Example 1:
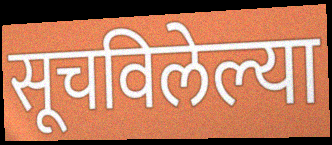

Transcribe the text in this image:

सूचविलेल्या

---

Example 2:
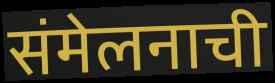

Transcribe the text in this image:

संमेलनाची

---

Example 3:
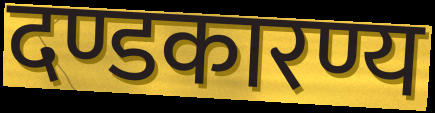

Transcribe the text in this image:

दण्डकारण्य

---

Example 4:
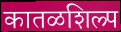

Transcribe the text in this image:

कातळशिल्प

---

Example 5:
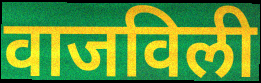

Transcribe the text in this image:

वाजविली